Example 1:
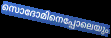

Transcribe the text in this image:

സൊദോമിനെപ്പോലെയും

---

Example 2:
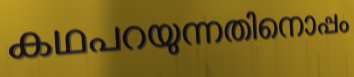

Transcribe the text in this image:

കഥപറയുന്നതിനൊപ്പം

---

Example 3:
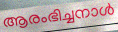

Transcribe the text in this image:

ആരംഭിച്ചനാൾ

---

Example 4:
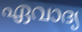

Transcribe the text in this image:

ഏവാദ്യ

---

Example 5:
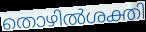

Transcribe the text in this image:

തൊഴിൽശക്തി